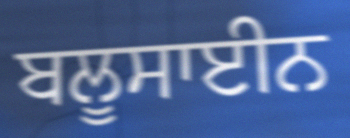
ਬਲੂਸਾਈਨ